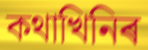
কথাখিনিৰ